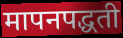
मापनपद्धती